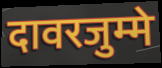
दावरजुम्मे